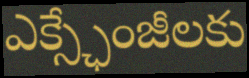
ఎక్స్ఛేంజీలకు